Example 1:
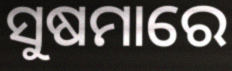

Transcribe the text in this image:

ସୁଷମାରେ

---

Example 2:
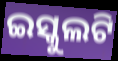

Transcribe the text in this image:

ଇସ୍କୁଲଟି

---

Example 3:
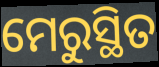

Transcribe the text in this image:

ମେରୁସ୍ଥିତ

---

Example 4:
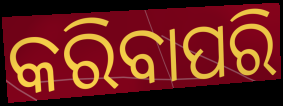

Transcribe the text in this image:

କରିବାପରି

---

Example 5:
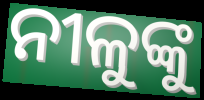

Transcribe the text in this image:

ନୀଳୁଙ୍କୁ